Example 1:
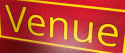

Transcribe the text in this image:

Venue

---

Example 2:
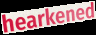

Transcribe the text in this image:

hearkened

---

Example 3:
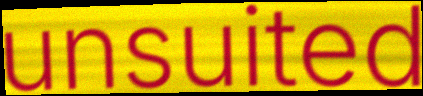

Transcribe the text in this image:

unsuited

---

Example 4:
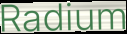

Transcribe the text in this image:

Radium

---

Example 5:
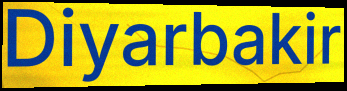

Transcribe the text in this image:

Diyarbakir